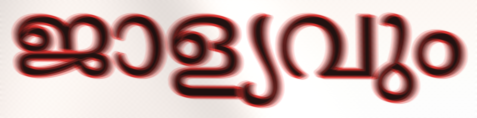
ജാള്യവും